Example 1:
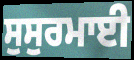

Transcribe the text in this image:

ਸੁਸੁਰਮਾਈ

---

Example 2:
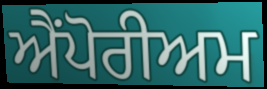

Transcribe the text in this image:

ਐਂਪੋਰੀਅਮ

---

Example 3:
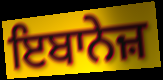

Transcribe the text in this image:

ਇਬਾਨੇਜ਼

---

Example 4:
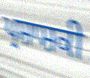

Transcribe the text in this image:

ਪ੍ਰਸ਼ਾਸ਼ਕੀ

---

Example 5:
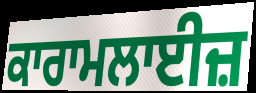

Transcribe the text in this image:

ਕਾਰਾਮਲਾਈਜ਼